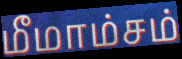
மீமாம்சம்